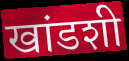
खांडशी